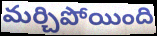
మర్చిపోయింది